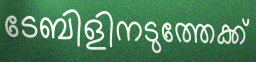
ടേബിളിനടുത്തേക്ക്